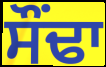
ਸੌਂਢਾ